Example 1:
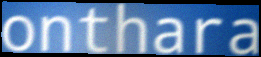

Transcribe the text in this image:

onthara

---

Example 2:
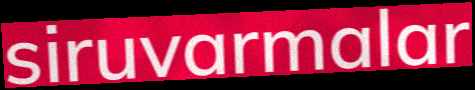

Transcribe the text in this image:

siruvarmalar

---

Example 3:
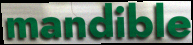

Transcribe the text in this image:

mandible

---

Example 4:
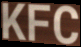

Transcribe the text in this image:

KFC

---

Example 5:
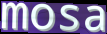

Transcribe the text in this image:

mosa